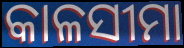
କାଳସୀମା